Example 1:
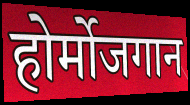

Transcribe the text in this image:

होर्मोजगान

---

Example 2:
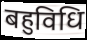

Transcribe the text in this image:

बहुविधि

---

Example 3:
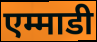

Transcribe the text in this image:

एम्माडी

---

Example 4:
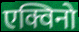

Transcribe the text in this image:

एक्विनो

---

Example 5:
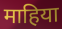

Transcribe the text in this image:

माहिया